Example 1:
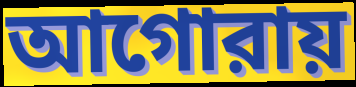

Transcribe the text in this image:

আগোরায়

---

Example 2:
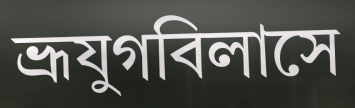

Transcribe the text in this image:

ভ্রূযুগবিলাসে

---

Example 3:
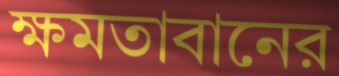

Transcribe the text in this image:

ক্ষমতাবানের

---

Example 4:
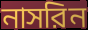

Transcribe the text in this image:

নাসরিন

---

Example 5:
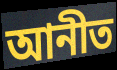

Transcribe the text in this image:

আনীত